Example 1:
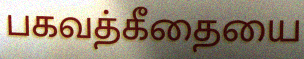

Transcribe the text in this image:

பகவத்கீதையை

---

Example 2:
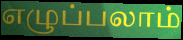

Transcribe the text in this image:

எழுப்பலாம்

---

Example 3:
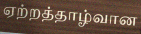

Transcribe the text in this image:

ஏற்றத்தாழ்வான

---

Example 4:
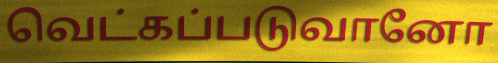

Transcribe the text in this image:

வெட்கப்படுவானோ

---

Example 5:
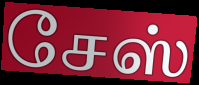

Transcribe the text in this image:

சேஸ்